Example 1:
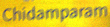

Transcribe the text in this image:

Chidamparam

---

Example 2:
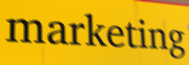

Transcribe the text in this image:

marketing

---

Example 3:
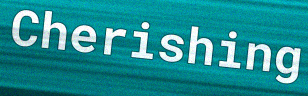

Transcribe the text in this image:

Cherishing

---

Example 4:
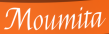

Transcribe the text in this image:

Moumita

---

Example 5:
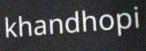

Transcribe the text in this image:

khandhopi